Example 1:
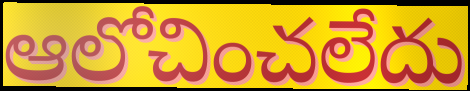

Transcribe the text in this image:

ఆలోచించలేదు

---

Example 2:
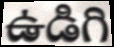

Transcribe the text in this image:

ఉడిగి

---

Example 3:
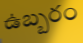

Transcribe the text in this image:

ఉబ్బరం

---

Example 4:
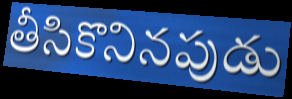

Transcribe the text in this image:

తీసికొనినపుడు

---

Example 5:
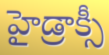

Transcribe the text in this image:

హైడ్రాక్సీ